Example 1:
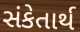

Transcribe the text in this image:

સંકેતાર્થ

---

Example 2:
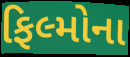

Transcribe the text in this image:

ફિલ્મોના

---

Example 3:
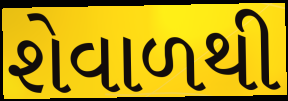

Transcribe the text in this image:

શેવાળથી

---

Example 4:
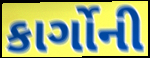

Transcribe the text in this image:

કાર્ગોની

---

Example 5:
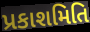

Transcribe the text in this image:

પ્રકાશમિતિ